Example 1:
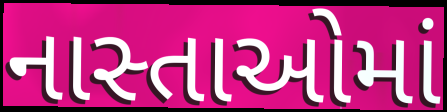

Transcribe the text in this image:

નાસ્તાઓમાં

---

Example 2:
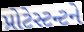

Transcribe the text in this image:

પ્રોટેસ્ટન્ટને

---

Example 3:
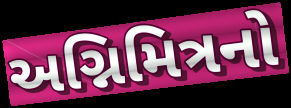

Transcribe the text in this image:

અગ્નિમિત્રનો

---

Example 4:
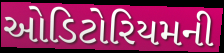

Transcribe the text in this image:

ઓડિટોરિયમની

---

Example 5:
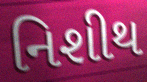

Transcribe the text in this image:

નિશીથ